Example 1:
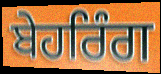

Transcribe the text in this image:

ਬੇਹਰਿੰਗ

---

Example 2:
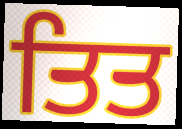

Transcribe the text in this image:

ਤਿਤ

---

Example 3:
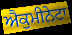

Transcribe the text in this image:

ਐਕੁਮੀਨੇਟਾ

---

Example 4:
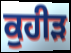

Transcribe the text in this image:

ਕੁਹੀੜ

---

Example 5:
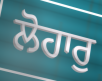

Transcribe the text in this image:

ਲੋਹਾਰੁ